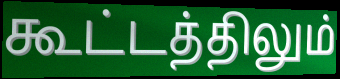
கூட்டத்திலும்